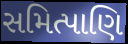
સમિત્પાણિ